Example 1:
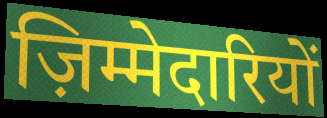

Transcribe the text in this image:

ज़िम्मेदारियों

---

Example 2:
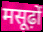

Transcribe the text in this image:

मसूढ़ों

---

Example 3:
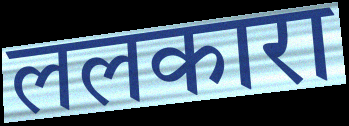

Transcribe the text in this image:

ललकारा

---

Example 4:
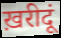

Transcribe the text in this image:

ख़रीदूं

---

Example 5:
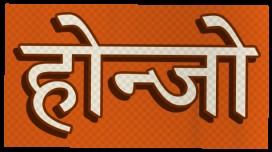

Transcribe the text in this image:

होन्जो